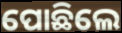
ପୋଛିଲେ